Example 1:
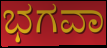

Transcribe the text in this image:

ಭಗವಾ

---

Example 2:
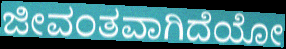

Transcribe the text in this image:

ಜೀವಂತವಾಗಿದೆಯೋ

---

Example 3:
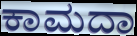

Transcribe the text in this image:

ಕಾಮದಾ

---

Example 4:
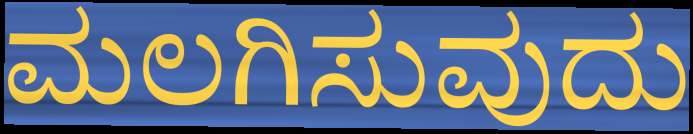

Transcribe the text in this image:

ಮಲಗಿಸುವುದು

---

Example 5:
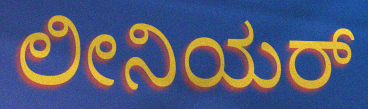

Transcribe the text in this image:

ಲೀನಿಯರ್